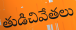
తుడిచివేతలు